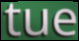
tue